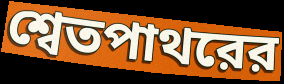
শ্বেতপাথরের